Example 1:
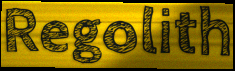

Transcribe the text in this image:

Regolith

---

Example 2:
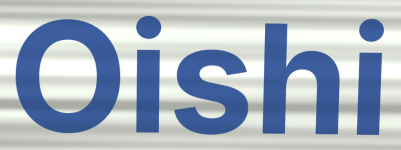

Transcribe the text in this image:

Oishi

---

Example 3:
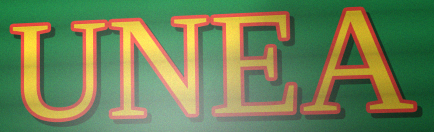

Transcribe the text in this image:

UNEA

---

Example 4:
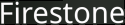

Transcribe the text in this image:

Firestone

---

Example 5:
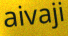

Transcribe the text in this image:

aivaji